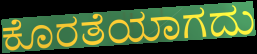
ಕೊರತೆಯಾಗದು